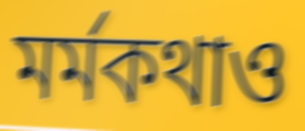
মর্মকথাও